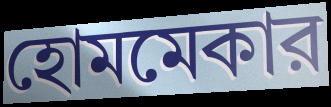
হোমমেকার